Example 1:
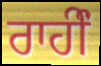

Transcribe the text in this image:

ਰਾਹੀਂੰ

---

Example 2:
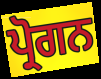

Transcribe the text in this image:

ਪ੍ਰੋਗਨ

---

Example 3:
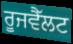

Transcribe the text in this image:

ਰੂਜਵੈੱਲਟ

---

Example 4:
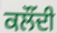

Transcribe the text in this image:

ਕਲੌਂਦੀ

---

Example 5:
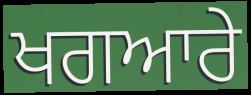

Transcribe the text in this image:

ਖਗਆਰੇ